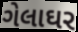
ગેલાઘર